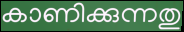
കാണിക്കുന്നതു